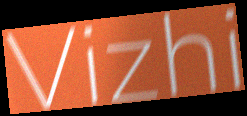
Vizhi